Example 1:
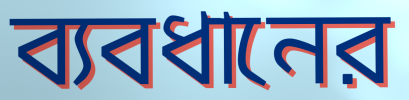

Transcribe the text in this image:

ব্যবধানের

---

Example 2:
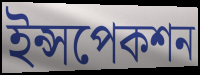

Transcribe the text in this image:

ইন্সপেকশন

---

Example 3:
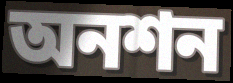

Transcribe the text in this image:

অনশন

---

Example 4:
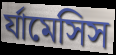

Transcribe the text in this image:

র্যামেসিস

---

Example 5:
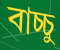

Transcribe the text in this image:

বাচ্চু